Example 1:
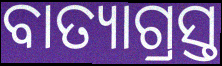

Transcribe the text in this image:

ବାତ୍ୟାଗ୍ରସ୍ତ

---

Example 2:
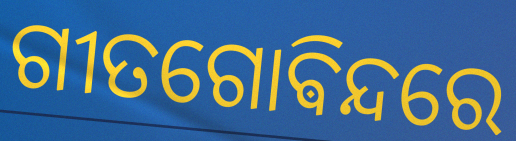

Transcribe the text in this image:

ଗୀତଗୋଵିନ୍ଦରେ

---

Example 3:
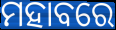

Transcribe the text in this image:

ମହାବରେ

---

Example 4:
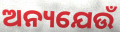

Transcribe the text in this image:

ଅନ୍ୟଯେଉଁ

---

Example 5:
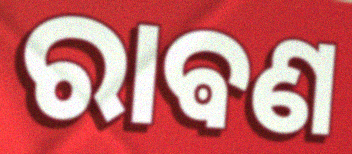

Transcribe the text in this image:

ରାଵଣ